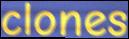
clones